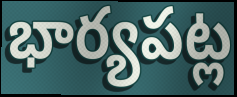
భార్యపట్ల